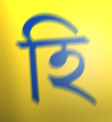
হি